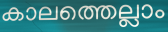
കാലത്തെല്ലാം